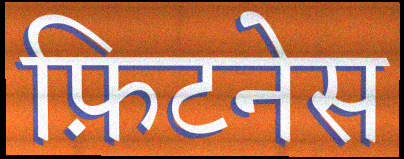
फ़िटनेस